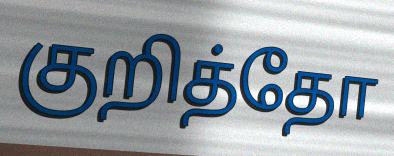
குறித்தோ